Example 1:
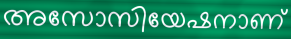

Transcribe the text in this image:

അസോസിയേഷനാണ്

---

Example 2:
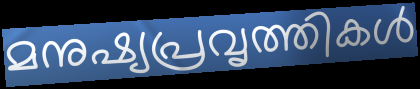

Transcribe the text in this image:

മനുഷ്യപ്രവൃത്തികൾ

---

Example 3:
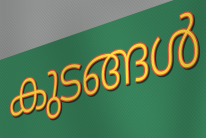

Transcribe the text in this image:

കുടങ്ങൾ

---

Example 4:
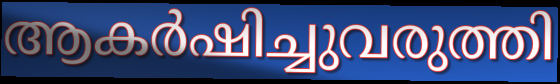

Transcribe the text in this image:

ആകർഷിച്ചുവരുത്തി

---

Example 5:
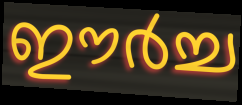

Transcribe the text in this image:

ഈർച്ച